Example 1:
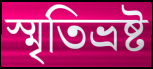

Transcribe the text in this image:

স্মৃতিভ্রষ্ট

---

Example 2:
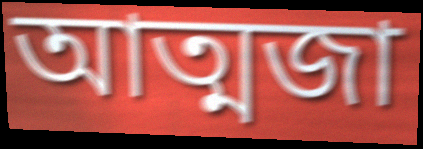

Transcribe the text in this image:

আত্মজা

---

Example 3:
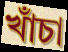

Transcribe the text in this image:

খাঁচা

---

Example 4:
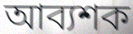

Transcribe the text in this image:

আব্যশক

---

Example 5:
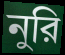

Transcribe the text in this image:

নুরি